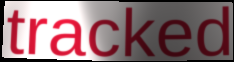
tracked